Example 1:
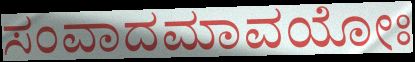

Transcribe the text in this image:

ಸಂವಾದಮಾವಯೋಃ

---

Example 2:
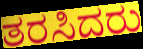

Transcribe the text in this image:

ತರಸಿದರು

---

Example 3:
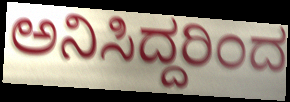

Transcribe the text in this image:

ಅನಿಸಿದ್ದರಿಂದ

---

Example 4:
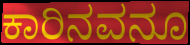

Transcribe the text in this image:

ಕಾರಿನವನೂ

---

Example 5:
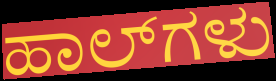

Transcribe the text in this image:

ಹಾಲ್‌ಗಳು